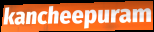
kancheepuram